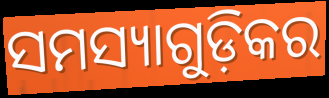
ସମସ୍ୟାଗୁଡ଼ିକର